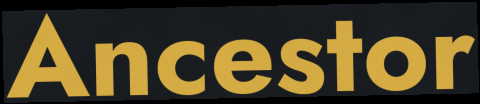
Ancestor